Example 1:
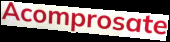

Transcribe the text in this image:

Acomprosate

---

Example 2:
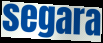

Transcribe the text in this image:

segara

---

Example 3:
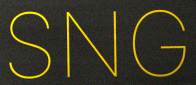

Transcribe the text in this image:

SNG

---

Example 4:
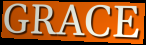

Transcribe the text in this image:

GRACE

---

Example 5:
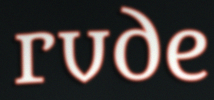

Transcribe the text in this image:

rude